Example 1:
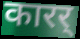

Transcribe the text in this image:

कारर्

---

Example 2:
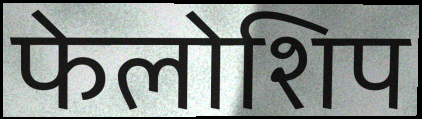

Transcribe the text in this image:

फेलोशिप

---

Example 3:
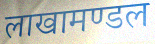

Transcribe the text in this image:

लाखामण्डल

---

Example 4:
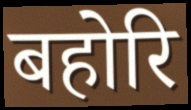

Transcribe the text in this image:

बहोरि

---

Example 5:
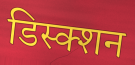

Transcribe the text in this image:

डिस्क्शन